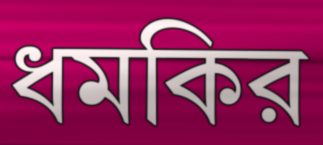
ধমকির